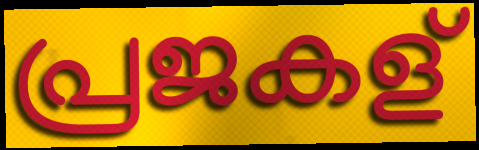
പ്രജകള്